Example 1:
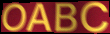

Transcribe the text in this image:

OABC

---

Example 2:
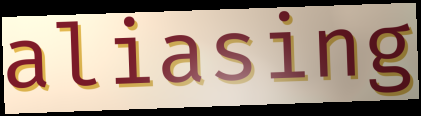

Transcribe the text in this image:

aliasing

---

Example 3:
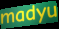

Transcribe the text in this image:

madyu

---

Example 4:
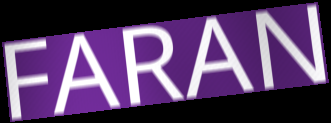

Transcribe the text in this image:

FARAN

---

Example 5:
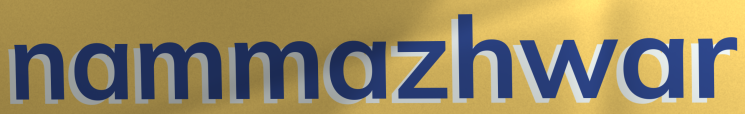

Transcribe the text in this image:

nammazhwar